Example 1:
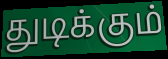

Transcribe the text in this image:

துடிக்கும்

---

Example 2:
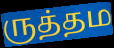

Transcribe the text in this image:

ருத்தம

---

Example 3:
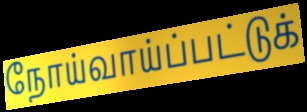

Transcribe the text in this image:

நோய்வாய்ப்பட்டுக்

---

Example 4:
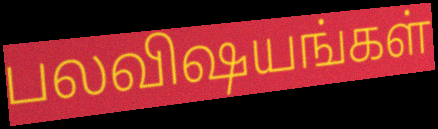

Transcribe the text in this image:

பலவிஷயங்கள்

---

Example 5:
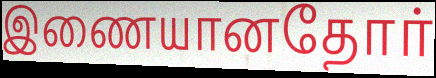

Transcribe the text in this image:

இணையானதோர்